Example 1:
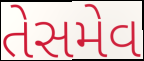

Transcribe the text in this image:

તેસમેવ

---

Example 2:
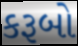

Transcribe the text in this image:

કરૂબો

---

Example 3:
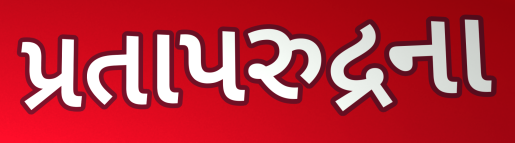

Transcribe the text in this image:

પ્રતાપરુદ્રના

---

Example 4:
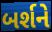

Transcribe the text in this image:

બર્શને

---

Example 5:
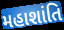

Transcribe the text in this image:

મહાશાંતિ